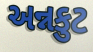
અન્નકુટ